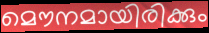
മൌനമായിരിക്കും